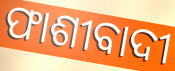
ଫାଶୀବାଦୀ